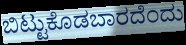
ಬಿಟ್ಟುಕೊಡಬಾರದೆಂದು